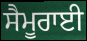
ਸੈਮੂਰਾਈ